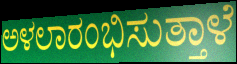
ಅಳಲಾರಂಭಿಸುತ್ತಾಳೆ